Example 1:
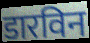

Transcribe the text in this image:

डारविन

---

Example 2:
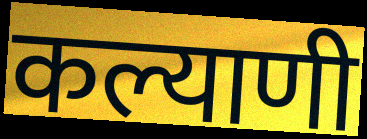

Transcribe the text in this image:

कल्याणी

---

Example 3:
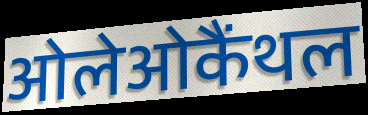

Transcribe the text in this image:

ओलेओकैंथल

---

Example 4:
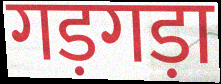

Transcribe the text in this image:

गड़गड़ा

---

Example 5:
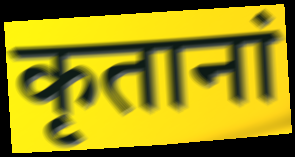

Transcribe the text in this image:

कृतानां